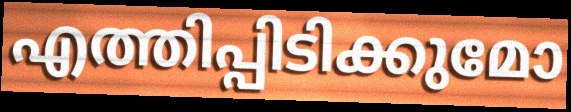
എത്തിപ്പിടിക്കുമോ